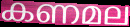
കണമല